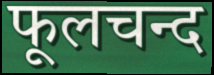
फूलचन्द